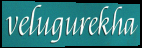
velugurekha